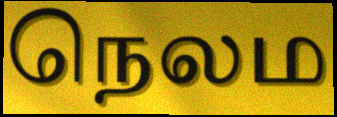
நெலம